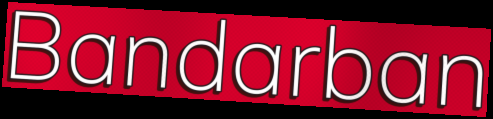
Bandarban